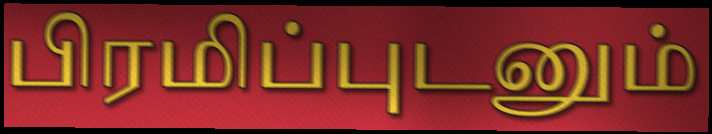
பிரமிப்புடனும்